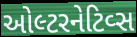
ઓલ્ટરનેટિવ્સ